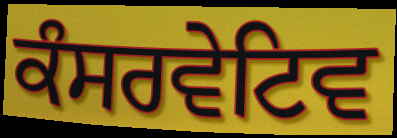
ਕੰਸਰਵੇਟਿਵ